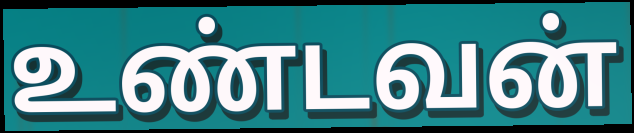
உண்டவன்